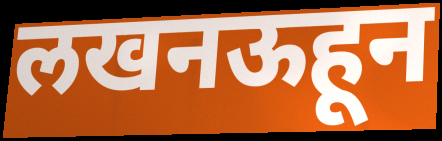
लखनऊहून